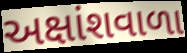
અક્ષાંશવાળા